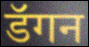
डॅगन